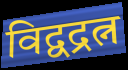
विद्वद्रत्न